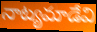
నాట్యమాడేవి